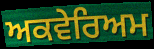
ਅਕਵੇਰਿਅਮ